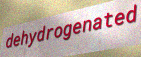
dehydrogenated